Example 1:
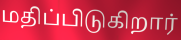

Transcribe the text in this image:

மதிப்பிடுகிறார்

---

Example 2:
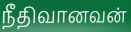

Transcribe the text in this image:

நீதிவானவன்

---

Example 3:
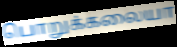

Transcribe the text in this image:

பொறுக்கலையா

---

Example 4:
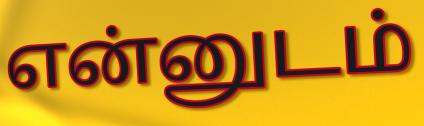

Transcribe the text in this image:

என்னுடம்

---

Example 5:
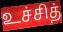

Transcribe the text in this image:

உச்சித்